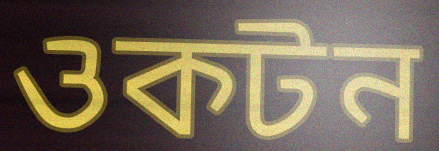
ওকটন